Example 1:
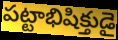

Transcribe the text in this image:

పట్టాభిషిక్తుడై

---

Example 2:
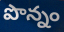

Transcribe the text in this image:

పొన్నం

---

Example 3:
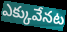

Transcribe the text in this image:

ఎక్కువేనట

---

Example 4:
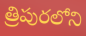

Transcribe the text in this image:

త్రిపురలోని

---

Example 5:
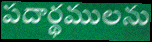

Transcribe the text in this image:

పదార్థములను